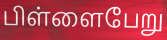
பிள்ளைபேறு